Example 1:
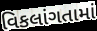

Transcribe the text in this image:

વિકલાંગતામાં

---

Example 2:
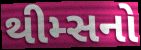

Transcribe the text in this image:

થીમ્સનો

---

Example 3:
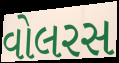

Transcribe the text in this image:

વોલરસ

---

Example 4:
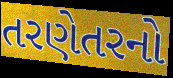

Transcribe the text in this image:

તરણેતરનો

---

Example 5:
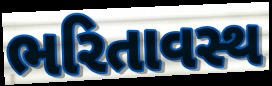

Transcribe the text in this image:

ભરિતાવસ્થ